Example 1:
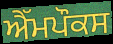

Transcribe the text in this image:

ਐੱਮਪੌਕਸ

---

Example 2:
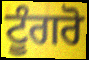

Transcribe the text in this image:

ਟੂੰਗਰੋ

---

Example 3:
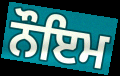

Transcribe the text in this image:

ਨੌਇਮ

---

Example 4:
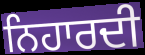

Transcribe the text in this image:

ਨਿਹਾਰਦੀ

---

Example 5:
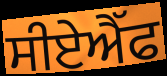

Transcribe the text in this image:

ਸੀਏਐੱਫ